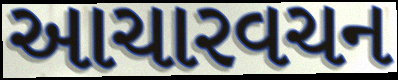
આચારવચન